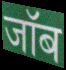
जॉब